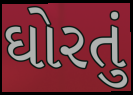
ઘોરતું